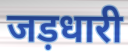
जड़धारी